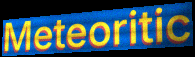
Meteoritic